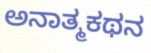
ಅನಾತ್ಮಕಥನ